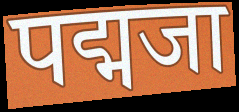
पद्मजा